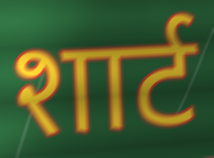
शार्ट